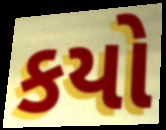
કયો